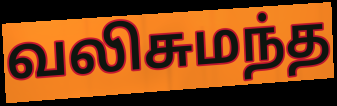
வலிசுமந்த